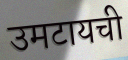
उमटायची